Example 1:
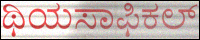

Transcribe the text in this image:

ಥಿಯಸಾಫಿಕಲ್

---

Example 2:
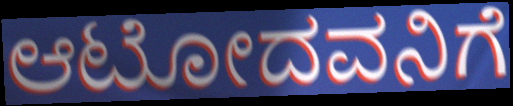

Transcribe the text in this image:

ಆಟೋದವನಿಗೆ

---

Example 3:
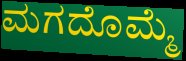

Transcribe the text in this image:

ಮಗದೊಮ್ಮೆ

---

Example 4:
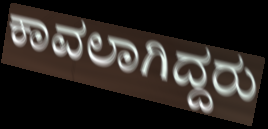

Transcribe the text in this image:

ಕಾವಲಾಗಿದ್ದರು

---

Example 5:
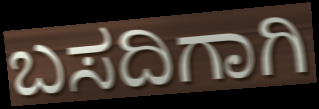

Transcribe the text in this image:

ಬಸದಿಗಾಗಿ